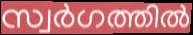
സ്വർഗത്തിൽ